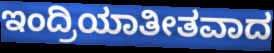
ಇಂದ್ರಿಯಾತೀತವಾದ